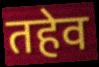
तहेव